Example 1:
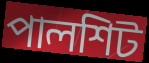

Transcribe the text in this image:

পালশিট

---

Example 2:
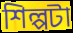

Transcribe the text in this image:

শিল্পটা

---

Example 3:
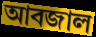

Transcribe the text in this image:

আবজাল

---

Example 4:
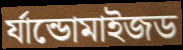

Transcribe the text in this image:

র্যান্ডোমাইজড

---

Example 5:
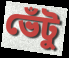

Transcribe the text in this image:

ভেঁটু